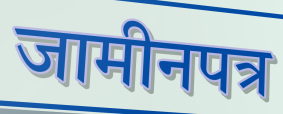
जामीनपत्र